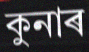
কুনাৰ